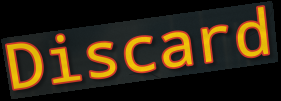
Discard